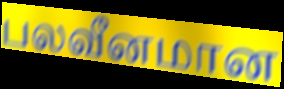
பலவீனமான